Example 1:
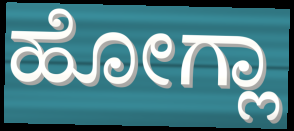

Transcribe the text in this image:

ಹೋಗ್ಲಾ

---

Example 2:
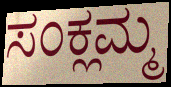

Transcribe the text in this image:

ಸಂಕ್ಲಮ್ಮ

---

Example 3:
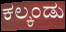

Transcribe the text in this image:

ಕಲ್ಕಂಡು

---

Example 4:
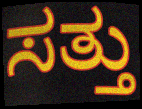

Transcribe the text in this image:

ಸತ್ತು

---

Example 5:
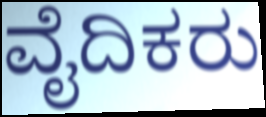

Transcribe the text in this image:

ವೈದಿಕರು